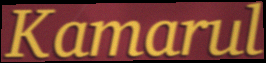
Kamarul